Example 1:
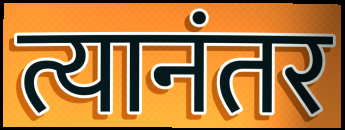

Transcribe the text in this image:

त्यानंतर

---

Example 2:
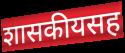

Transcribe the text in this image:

शासकीयसह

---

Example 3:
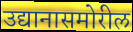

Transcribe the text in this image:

उद्यानासमोरील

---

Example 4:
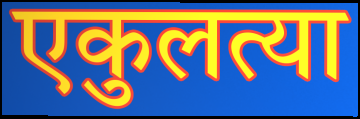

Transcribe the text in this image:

एकुलत्या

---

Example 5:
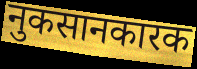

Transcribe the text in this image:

नुकसानकारक